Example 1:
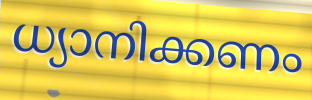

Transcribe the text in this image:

ധ്യാനിക്കണം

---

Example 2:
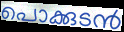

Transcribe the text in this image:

പൊക്കുടൻ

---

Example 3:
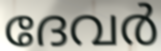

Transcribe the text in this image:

ദേവർ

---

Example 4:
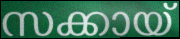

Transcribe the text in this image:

സക്കായ്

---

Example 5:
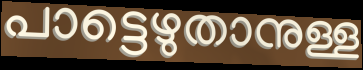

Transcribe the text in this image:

പാട്ടെഴുതാനുള്ള